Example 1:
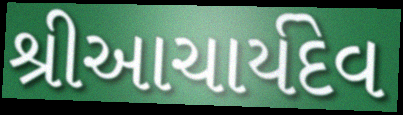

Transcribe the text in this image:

શ્રીઆચાર્યદેવ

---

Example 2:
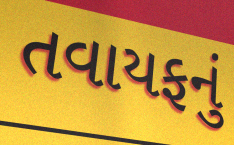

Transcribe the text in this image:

તવાયફનું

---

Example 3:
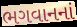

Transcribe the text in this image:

ભગવાનનાં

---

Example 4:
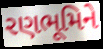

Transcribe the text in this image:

રણભૂમિને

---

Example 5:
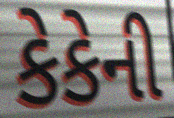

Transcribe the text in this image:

કેકેની